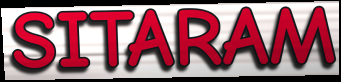
SITARAM